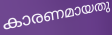
കാരണമായതു